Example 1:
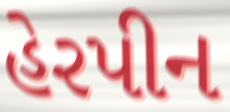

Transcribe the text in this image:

હેરપીન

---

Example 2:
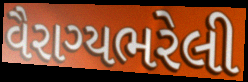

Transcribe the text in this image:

વૈરાગ્યભરેલી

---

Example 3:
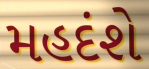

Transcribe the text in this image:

મહદંશે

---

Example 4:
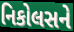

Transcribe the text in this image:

નિકોલસને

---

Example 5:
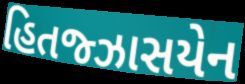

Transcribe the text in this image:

હિતજ્ઝાસયેન